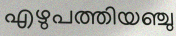
എഴുപത്തിയഞ്ചു